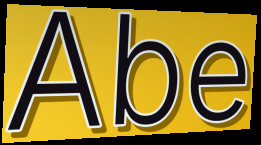
Abe